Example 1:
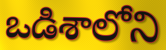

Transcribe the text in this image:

ఒడిశాలోని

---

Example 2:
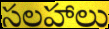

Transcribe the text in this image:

సలహాలు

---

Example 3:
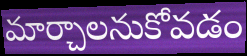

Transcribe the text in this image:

మార్చాలనుకోవడం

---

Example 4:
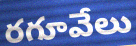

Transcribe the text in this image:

రగూవేలు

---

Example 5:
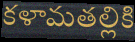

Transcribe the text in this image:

కళామతల్లికి